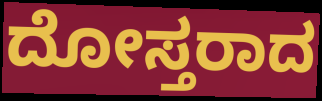
ದೋಸ್ತರಾದ